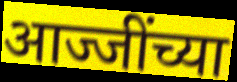
आज्जींच्या